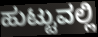
ಹುಟ್ಟುವಲ್ಲಿ